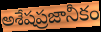
అశేషప్రజానీకం